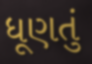
ધૂણતું